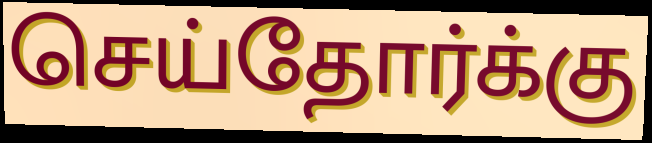
செய்தோர்க்கு